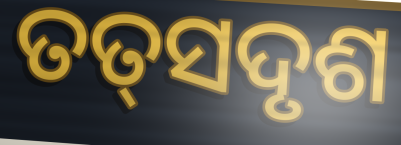
ତତ୍‌ସଦୃଶ